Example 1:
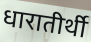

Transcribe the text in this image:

धारातीर्थी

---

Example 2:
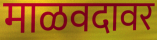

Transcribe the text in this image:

माळवदावर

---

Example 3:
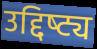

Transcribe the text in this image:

उद्दिष्ट्य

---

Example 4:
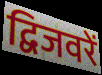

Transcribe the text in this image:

द्विजवरें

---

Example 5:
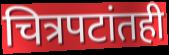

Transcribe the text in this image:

चित्रपटांतही